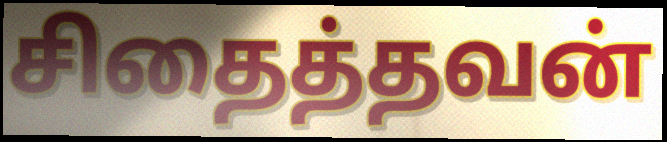
சிதைத்தவன்